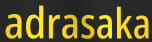
adrasaka